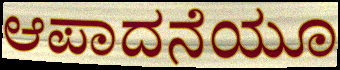
ಆಪಾದನೆಯೂ